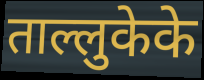
ताल्लुकेके